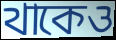
থাকেও